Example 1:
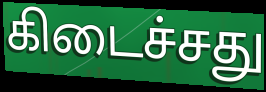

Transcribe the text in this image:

கிடைச்சது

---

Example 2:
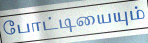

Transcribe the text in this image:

போட்டியையும்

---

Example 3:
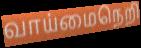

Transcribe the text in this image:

வாய்மைநெறி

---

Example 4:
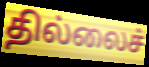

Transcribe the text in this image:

தில்லைச்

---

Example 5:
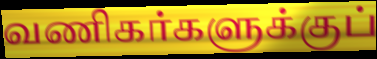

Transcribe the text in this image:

வணிகர்களுக்குப்